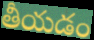
తీయడం